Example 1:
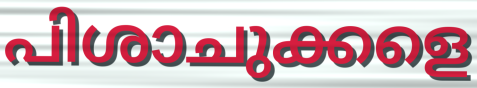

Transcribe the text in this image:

പിശാചുക്കളെ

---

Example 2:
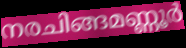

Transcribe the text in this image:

നരചിങ്ങമണ്ണൂർ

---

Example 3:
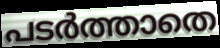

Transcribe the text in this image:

പടർത്താതെ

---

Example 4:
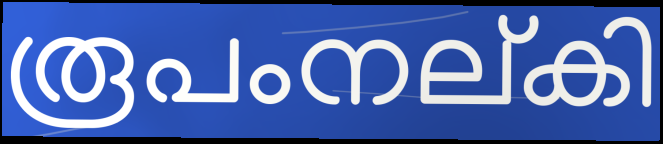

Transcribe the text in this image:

രൂപംനല്കി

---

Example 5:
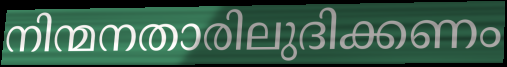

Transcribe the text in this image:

നിന്മനതാരിലുദിക്കണം